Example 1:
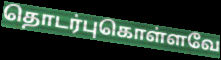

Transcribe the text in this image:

தொடர்புகொள்ளவே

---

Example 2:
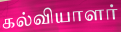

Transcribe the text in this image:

கல்வியாளர்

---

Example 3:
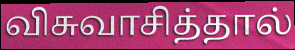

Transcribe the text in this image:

விசுவாசித்தால்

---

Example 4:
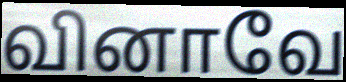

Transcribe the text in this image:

வினாவே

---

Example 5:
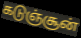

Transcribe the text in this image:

கடுஞ்சூன்